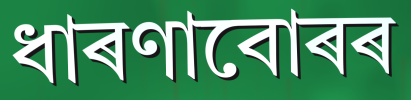
ধাৰণাবোৰৰ